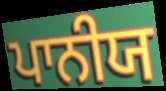
ਪਾਨੀਯ